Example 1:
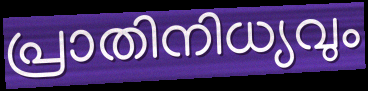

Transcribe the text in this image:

പ്രാതിനിധ്യവും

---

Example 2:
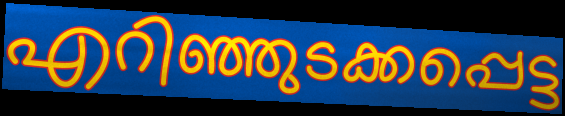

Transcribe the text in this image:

എറിഞ്ഞുടക്കപ്പെട്ട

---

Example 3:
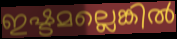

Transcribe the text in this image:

ഇഷ്ടമല്ലെങ്കിൽ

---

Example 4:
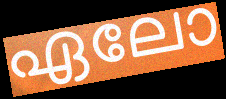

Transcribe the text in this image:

ഏലോ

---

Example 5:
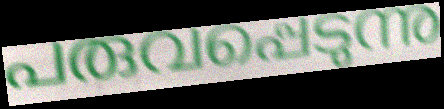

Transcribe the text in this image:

പരുവപ്പെടുന്നു